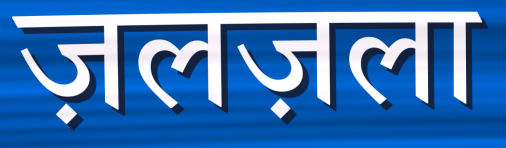
ज़लज़ला